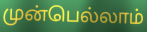
முன்பெல்லாம்